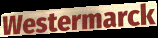
Westermarck